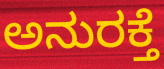
ಅನುರಕ್ತೆ